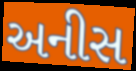
અનીસ